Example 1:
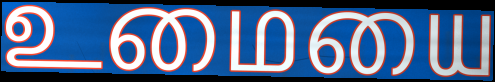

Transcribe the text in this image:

உமையை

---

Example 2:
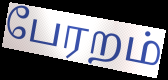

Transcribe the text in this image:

பேரறம்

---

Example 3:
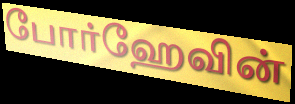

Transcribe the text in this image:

போர்ஹேவின்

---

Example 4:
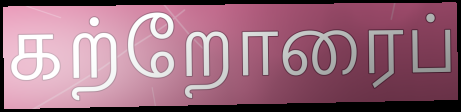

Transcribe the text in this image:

கற்றோரைப்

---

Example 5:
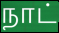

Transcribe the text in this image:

நாட்